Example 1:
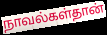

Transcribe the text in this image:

நாவல்கள்தான்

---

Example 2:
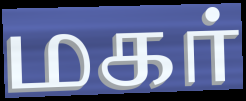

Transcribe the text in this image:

மகர்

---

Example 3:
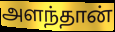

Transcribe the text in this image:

அளந்தான்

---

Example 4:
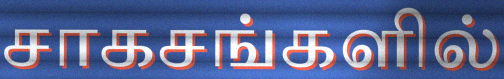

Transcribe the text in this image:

சாகசங்களில்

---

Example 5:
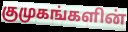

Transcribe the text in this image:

குமுகங்களின்